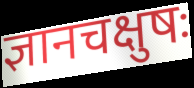
ज्ञानचक्षुषः